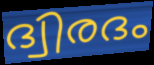
ദ്വിരദം